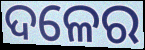
ଦଳେର